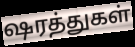
ஷரத்துகள்